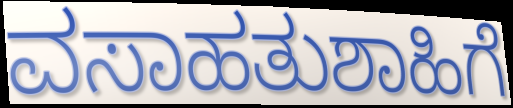
ವಸಾಹತುಶಾಹಿಗೆ